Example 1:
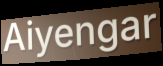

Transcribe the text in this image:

Aiyengar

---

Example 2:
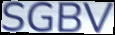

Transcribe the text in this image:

SGBV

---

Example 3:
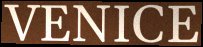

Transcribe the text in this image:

VENICE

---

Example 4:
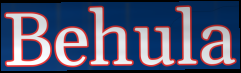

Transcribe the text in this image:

Behula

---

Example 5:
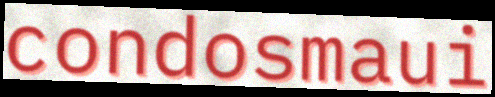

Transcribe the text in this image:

condosmaui